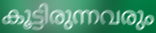
കൂട്ടിരുന്നവരും